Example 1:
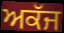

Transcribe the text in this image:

ਅਕੱਜ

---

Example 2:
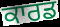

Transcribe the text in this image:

ਕਾਰਡ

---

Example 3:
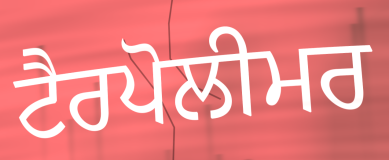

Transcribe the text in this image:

ਟੈਰਪੋਲੀਮਰ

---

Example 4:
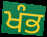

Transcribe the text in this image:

ਖੰਭ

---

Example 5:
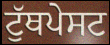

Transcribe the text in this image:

ਟੁੱਥਪੇਸਟ